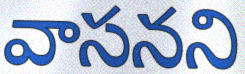
వాసనని